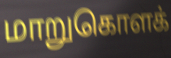
மாறுகொளக்